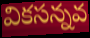
వికసన్నవ